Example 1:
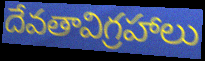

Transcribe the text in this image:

దేవతావిగ్రహాలు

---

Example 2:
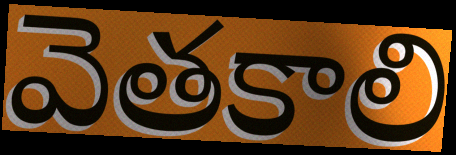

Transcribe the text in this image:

వెతకాలి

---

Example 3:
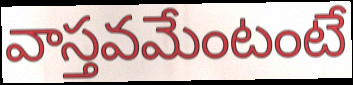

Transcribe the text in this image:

వాస్తవమేంటంటే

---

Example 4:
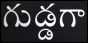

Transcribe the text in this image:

గుడ్డగా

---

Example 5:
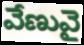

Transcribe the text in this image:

వేణువై